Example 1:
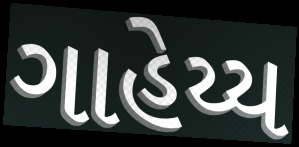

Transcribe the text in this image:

ગાહેય્ય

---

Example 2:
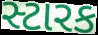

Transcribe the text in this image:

સ્ટારક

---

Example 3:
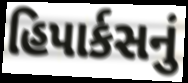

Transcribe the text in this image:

હિપાર્કસનું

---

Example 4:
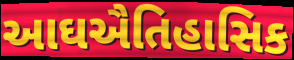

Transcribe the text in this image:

આઘઐતિહાસિક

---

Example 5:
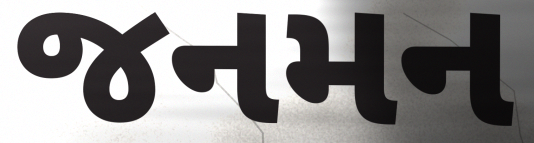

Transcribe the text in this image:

જનમન